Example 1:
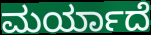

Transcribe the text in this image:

ಮರ್ಯಾದೆ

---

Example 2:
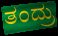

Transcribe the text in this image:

ತಂದ್ರು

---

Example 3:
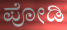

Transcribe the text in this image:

ಪೋಡಿ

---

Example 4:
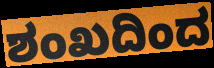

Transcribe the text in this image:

ಶಂಖದಿಂದ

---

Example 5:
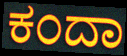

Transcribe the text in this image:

ಕಂದಾ